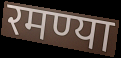
रमण्या